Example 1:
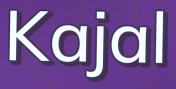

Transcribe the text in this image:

Kajal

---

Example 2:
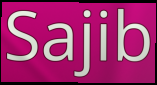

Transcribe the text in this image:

Sajib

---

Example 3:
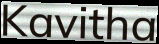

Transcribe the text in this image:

Kavitha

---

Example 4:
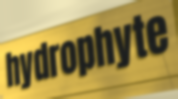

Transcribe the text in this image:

hydrophyte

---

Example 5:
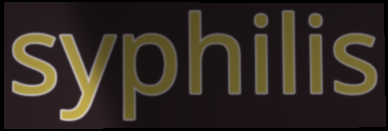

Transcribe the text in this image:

syphilis